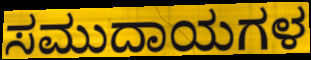
ಸಮುದಾಯಗಳ